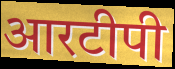
आरटीपी